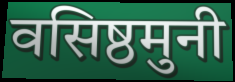
वसिष्ठमुनी